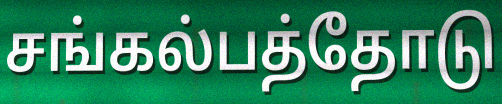
சங்கல்பத்தோடு